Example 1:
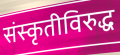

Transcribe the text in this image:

संस्कृतीविरुद्ध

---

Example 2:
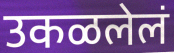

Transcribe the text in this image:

उकळलेलं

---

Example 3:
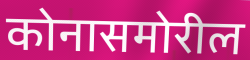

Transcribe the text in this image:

कोनासमोरील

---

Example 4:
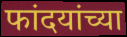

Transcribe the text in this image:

फांदयांच्या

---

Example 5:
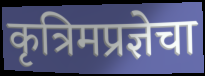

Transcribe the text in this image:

कृत्रिमप्रज्ञेचा